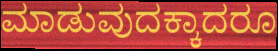
ಮಾಡುವುದಕ್ಕಾದರೂ